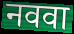
नववा